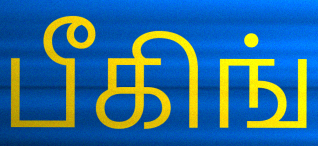
பீகிங்